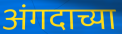
अंगदाच्या